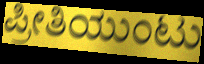
ಪ್ರೀತಿಯುಂಟು